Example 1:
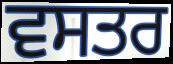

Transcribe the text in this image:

ਵਸਤਰ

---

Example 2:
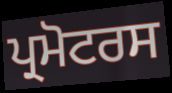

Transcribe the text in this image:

ਪ੍ਰਮੋਟਰਸ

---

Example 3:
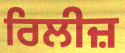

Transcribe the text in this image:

ਰਿਲੀਜ਼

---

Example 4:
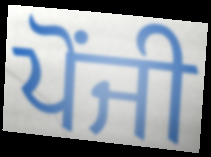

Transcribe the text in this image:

ਪੋਂਜੀ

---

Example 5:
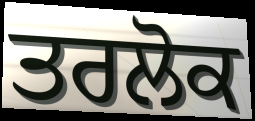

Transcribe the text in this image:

ਤਰਲੋਕ